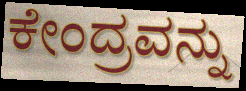
ಕೇಂದ್ರವನ್ನು